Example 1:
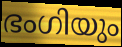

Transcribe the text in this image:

ഭംഗിയും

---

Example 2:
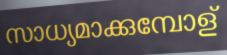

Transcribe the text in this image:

സാധ്യമാക്കുമ്പോള്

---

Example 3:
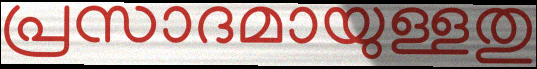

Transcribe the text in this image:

പ്രസാദമായുള്ളതു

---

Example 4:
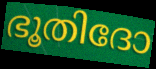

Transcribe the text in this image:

ഭൂതിദോ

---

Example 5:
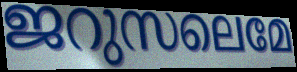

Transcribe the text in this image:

ജറുസലെമേ